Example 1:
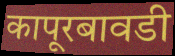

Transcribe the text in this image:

कापूरबावडी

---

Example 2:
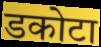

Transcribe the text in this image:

डकोटा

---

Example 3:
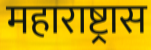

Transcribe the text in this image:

महाराष्ट्रास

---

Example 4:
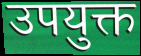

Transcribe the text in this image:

उपयुक्त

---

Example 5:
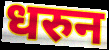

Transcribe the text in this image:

धरुन